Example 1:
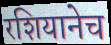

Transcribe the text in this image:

रशियानेच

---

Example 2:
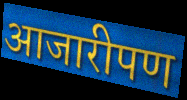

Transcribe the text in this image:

आजारीपण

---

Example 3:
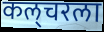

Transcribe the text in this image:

कल्चरला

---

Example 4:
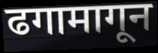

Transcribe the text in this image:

ढगामागून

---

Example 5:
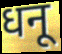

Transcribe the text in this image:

धनू